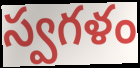
స్వగళం